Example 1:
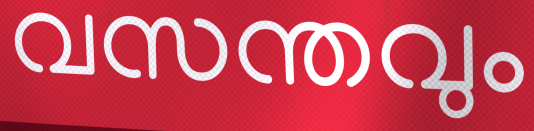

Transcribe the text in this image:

വസന്തവും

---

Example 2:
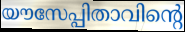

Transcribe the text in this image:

യൗസേപ്പിതാവിന്റെ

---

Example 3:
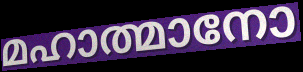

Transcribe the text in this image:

മഹാത്മാനോ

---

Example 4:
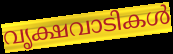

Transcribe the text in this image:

വൃക്ഷവാടികൾ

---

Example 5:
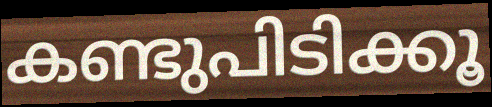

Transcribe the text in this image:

കണ്ടുപിടിക്കൂ